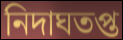
নিদাঘতপ্ত